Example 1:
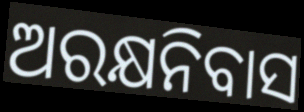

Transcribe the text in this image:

ଅରକ୍ଷନିବାସ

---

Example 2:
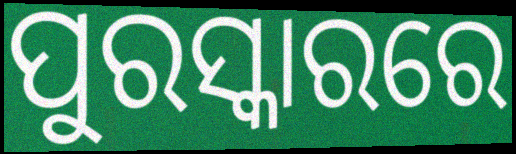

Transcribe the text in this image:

ପୁରସ୍କାରରେ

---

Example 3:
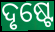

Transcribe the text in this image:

ଦୃଷ୍ଟେ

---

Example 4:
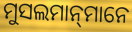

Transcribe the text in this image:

ମୁସଲମାନ୍‌ମାନେ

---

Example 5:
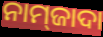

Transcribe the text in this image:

ନାମ୍‍ଜାଦା